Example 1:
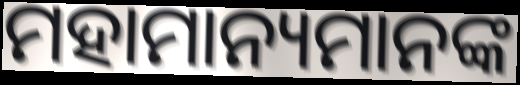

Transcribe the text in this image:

ମହାମାନ୍ୟମାନଙ୍କ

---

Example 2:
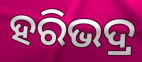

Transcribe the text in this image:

ହରିଭଦ୍ର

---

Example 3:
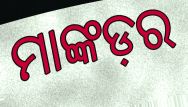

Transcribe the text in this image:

ମାଙ୍କଡ଼ର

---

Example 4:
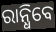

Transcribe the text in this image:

ରାନ୍ଧିବେ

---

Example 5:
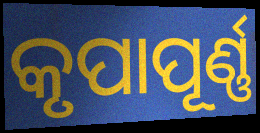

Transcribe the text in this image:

କୃପାପୂର୍ଣ୍ଣ